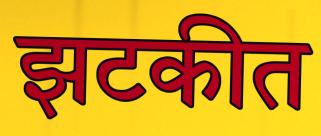
झटकीत